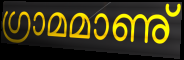
ഗ്രാമമാണു്